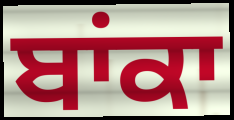
ਬਾਂਕਾ